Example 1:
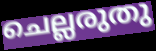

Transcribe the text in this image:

ചെല്ലരുതു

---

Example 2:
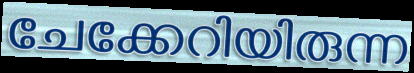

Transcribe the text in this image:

ചേക്കേറിയിരുന്ന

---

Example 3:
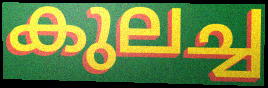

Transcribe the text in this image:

കുലച്ച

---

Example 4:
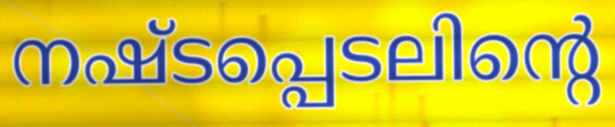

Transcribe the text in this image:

നഷ്ടപ്പെടലിന്റെ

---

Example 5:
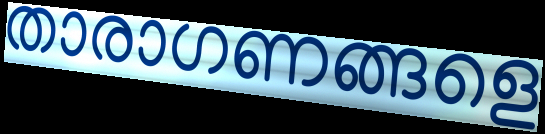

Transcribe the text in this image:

താരാഗണങ്ങളെ